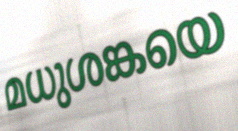
മധുശങ്കയെ